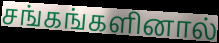
சங்கங்களினால்